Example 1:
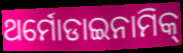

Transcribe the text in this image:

ଥର୍ମୋଡାଇନାମିକ୍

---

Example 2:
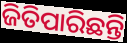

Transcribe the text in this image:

ଜିତିପାରିଛନ୍ତି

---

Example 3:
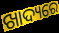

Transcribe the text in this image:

ଖାଦ୍ୟରେ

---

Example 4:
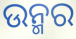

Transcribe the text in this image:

ଉନ୍ମର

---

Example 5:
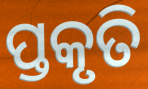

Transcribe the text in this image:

ପ୍ତକୃତି